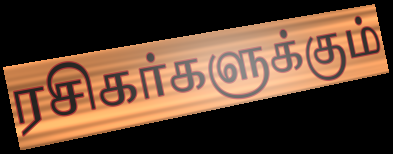
ரசிகர்களுக்கும்